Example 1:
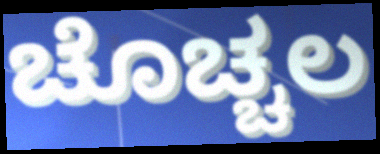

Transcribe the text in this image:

ಚೊಚ್ಚಲ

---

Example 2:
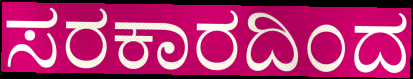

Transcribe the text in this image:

ಸರಕಾರದಿಂದ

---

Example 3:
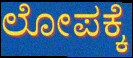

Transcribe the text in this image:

ಲೋಪಕ್ಕೆ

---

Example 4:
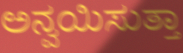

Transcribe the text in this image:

ಅನ್ವಯಿಸುತ್ತಾ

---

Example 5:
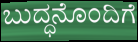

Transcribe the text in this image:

ಬುದ್ಧನೊಂದಿಗೆ